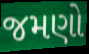
જમણો